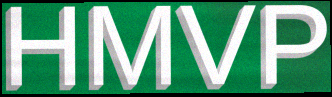
HMVP